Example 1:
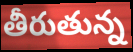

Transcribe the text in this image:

తీరుతున్న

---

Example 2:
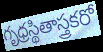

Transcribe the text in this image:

గృధ్రస్థితాస్త్రకరో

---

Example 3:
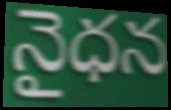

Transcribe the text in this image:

నైధన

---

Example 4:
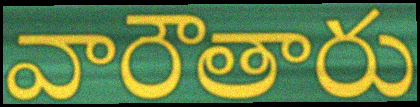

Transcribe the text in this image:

వారౌతారు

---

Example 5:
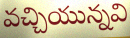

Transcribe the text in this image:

వచ్చియున్నవి